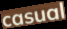
casual